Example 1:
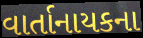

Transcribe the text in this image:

વાર્તાનાયકના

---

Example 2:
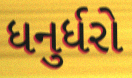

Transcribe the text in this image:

ધનુર્ધરો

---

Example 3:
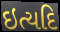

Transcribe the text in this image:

ઇત્યદિ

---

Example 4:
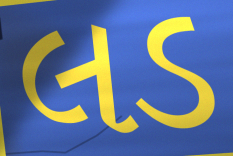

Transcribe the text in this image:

લડ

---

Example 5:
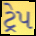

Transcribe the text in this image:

ટ્રેપ